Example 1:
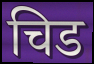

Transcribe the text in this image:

चिड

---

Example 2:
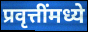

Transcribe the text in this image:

प्रवृत्तींमध्ये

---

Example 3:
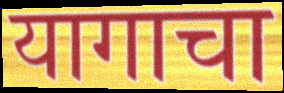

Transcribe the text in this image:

यागाचा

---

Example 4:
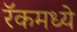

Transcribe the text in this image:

रॅकमध्ये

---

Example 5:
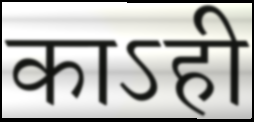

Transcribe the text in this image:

काऽही